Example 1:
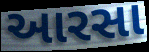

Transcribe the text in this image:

આરસા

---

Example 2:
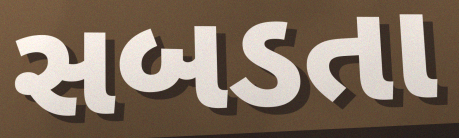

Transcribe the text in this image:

સબડતા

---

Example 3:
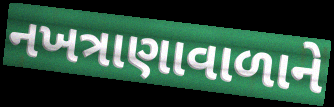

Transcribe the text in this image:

નખત્રાણાવાળાને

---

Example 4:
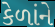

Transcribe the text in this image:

કેળાંને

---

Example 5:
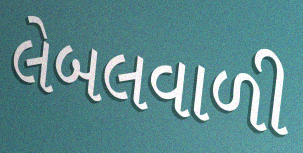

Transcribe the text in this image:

લેબલવાળી